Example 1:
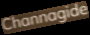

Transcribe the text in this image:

Channagide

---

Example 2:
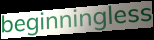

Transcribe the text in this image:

beginningless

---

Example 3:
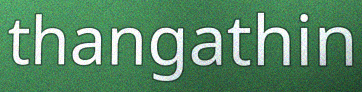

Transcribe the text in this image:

thangathin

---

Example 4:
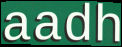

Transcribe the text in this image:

aadh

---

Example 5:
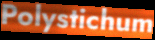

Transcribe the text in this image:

Polystichum